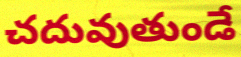
చదువుతుండే